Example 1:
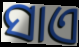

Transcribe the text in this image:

ସାଏ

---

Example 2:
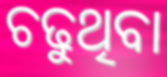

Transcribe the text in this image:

ଚଢୁଥିବା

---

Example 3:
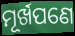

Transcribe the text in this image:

ମୂର୍ଖପଣେ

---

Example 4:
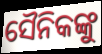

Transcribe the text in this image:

ସୈନିକଙ୍କୁ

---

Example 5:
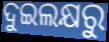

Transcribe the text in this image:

ଦୁଇଲକ୍ଷରୁ